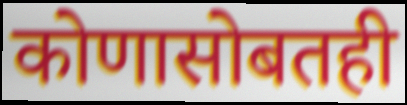
कोणासोबतही